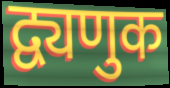
द्व्यणुक